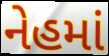
નેહમાં